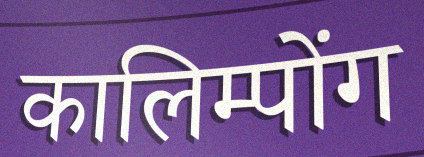
कालिम्पोंग